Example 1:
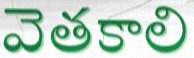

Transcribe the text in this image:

వెతకాలి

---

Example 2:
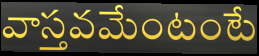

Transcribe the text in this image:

వాస్తవమేంటంటే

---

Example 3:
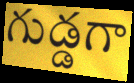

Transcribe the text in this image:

గుడ్డగా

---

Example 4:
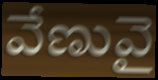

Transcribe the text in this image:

వేణువై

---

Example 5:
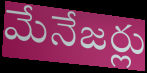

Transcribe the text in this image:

మేనేజర్లు